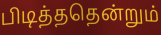
பிடித்ததென்றும்